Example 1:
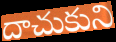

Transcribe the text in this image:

దాచుకుని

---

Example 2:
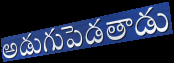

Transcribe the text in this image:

అడుగుపెడతాడు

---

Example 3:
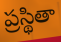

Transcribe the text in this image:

ప్రస్థితా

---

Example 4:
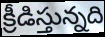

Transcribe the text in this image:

క్రీడిస్తున్నది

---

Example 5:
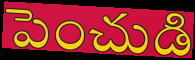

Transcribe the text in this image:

పెంచుడి